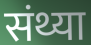
संथ्या